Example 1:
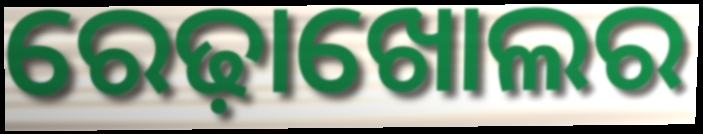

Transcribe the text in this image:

ରେଢ଼ାଖୋଲର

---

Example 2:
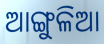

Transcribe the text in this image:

ଆଙ୍ଗୁଳିଆ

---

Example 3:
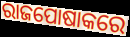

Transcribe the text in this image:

ରାଜପୋଷାକରେ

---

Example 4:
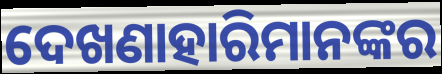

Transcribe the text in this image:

ଦେଖଣାହାରିମାନଙ୍କର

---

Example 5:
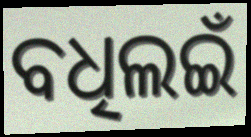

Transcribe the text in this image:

ବଧିଲଇଁ